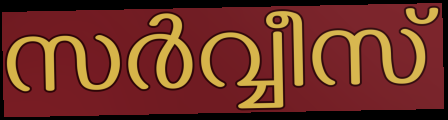
സർവ്വീസ്